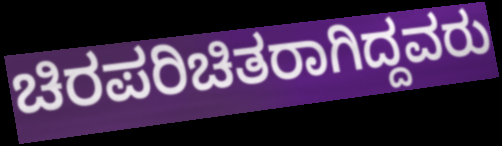
ಚಿರಪರಿಚಿತರಾಗಿದ್ದವರು